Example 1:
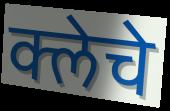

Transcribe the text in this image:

क्लेचे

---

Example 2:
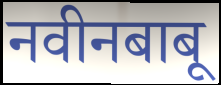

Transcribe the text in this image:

नवीनबाबू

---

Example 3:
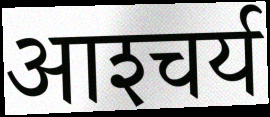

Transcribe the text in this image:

आश्‍चर्य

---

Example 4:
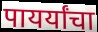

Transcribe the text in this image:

पायर्यांचा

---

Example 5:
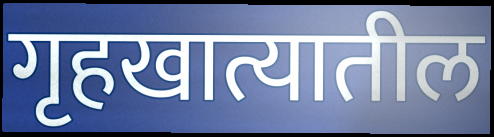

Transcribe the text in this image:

गृहखात्यातील